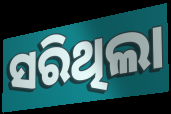
ସରିଥିଲା